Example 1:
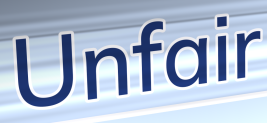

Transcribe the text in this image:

Unfair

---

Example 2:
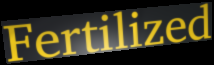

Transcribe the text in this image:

Fertilized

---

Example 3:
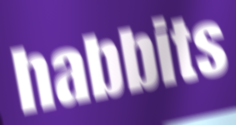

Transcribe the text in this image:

habbits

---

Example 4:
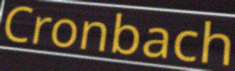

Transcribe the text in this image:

Cronbach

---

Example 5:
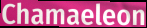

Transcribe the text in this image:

Chamaeleon